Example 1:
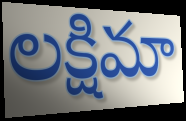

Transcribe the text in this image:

లక్షిమా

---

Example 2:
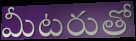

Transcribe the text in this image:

మీటరుతో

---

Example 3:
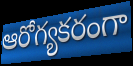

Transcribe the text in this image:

ఆరోగ్యకరంగా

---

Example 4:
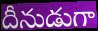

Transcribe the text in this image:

దీనుడుగా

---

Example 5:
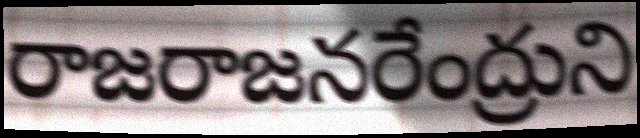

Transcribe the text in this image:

రాజరాజనరేంద్రుని